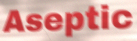
Aseptic